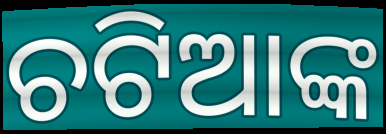
ଚଟିଆଙ୍କ